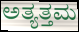
ಅತ್ಯತ್ತಮ